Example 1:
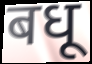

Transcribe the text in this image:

बधू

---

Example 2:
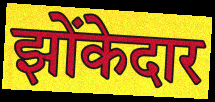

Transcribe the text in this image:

झोंकेदार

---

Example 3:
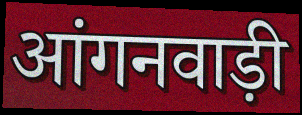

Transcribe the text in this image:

आंगनवाड़ी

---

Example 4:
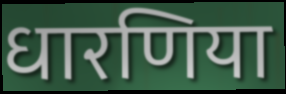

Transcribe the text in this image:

धारणिया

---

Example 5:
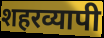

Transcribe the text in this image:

शहरव्यापी